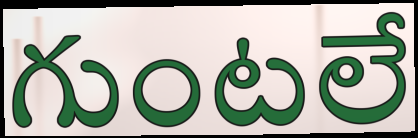
గుంటలే